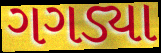
ગગડ્યા